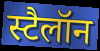
स्टैलॉन